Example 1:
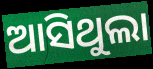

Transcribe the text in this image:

ଆସିଥୁଲା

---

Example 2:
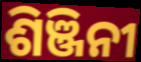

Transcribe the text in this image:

ଶିଞ୍ଜିନୀ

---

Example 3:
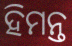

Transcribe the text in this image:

ହିମନ୍ତ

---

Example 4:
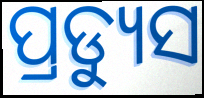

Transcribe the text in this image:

ପ୍ରଡ୍ୟୁସ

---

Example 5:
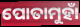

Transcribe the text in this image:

ପୋତାମୁହାଁ